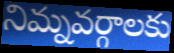
నిమ్నవర్గాలకు